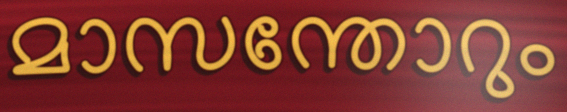
മാസന്തോറും